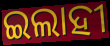
ଇଲାହୀ